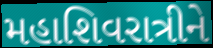
મહાશિવરાત્રીને